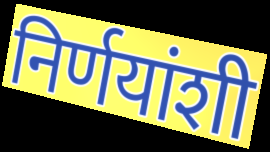
निर्णयांशी